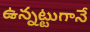
ఉన్నట్టుగానే